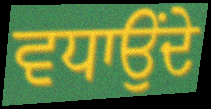
ਵਧਾਉੁਂਦੇ